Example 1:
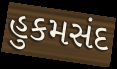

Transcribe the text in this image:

હુકમસંદ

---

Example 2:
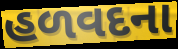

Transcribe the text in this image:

હળવદના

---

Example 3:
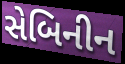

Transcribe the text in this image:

સેબિનીન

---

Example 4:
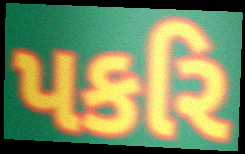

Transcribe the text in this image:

પકરિ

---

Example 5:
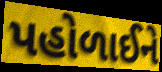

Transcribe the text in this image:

પહોળાઈને